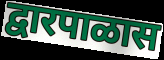
द्वारपाळास